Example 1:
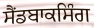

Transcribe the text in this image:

ਸੈਂਡਬਾਕਸਿੰਗ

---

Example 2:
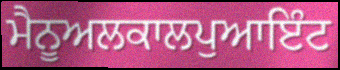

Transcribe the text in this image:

ਮੈਨੂਅਲਕਾਲਪੁਆਇੰਟ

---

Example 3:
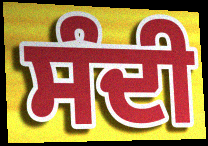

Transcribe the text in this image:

ਸੰਦੀ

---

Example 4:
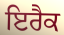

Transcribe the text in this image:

ਇਰੈਕ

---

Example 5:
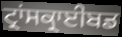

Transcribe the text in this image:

ਟ੍ਰਾਂਸਕ੍ਰਾਈਬਡ